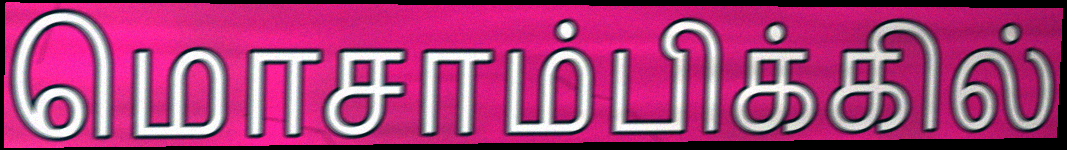
மொசாம்பிக்கில்